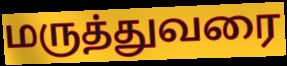
மருத்துவரை